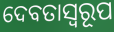
ଦେବତାସ୍ୱରୂପ